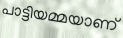
പാട്ടിയമ്മയാണ്